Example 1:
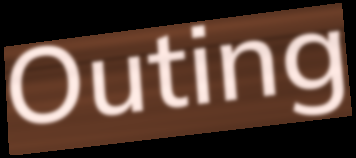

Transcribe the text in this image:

Outing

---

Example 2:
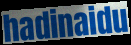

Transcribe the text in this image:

hadinaidu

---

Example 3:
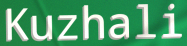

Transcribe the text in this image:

Kuzhali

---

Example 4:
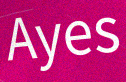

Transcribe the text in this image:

Ayes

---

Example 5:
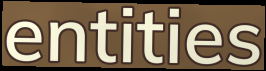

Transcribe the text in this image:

entities